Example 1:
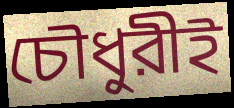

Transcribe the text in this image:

চৌধুরীই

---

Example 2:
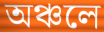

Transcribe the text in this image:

অঞ্চলে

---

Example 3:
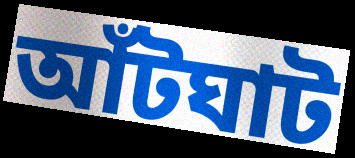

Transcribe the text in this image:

আঁটঘাট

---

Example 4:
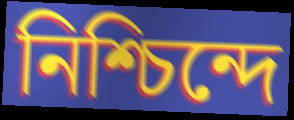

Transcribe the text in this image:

নিশ্চিন্দে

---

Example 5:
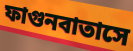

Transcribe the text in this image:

ফাগুনবাতাসে